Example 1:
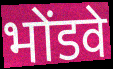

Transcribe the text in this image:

भोंडवे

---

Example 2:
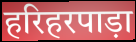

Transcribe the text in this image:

हरिहरपाड़ा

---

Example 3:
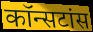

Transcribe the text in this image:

कॉन्सटांस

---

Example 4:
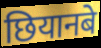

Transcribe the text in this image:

छियानबे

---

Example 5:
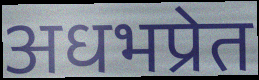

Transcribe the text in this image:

अधभप्रेत